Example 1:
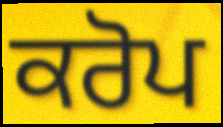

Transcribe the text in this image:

ਕਰੋਪ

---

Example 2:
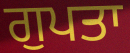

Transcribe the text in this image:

ਗੁਪਤਾ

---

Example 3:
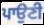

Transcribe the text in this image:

ਪਾਉਣੀ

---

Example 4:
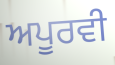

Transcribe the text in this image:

ਅਪੂਰਵੀ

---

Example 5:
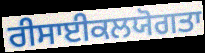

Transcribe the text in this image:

ਰੀਸਾਈਕਲਯੋਗਤਾ